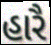
હારૈ